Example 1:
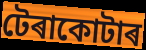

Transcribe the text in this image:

টেৰাকোটাৰ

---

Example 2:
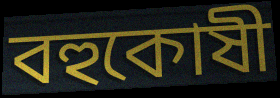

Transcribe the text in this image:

বহুকোষী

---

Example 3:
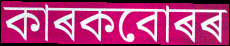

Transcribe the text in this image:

কাৰকবোৰৰ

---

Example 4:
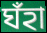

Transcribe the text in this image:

ঘঁহা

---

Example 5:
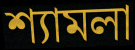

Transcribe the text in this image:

শ্যামলা